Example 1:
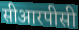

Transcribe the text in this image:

सीआरपीसी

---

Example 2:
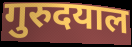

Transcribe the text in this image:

गुरुदयाल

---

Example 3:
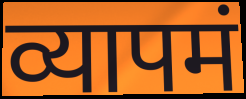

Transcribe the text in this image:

व्‍यापमं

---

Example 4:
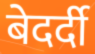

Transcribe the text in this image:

बेदर्दी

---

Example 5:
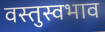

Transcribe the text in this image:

वस्तुस्वभाव